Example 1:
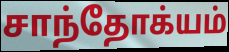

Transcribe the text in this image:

சாந்தோக்யம்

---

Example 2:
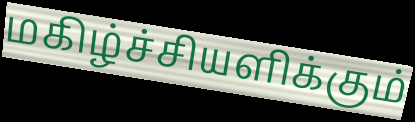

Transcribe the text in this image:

மகிழ்ச்சியளிக்கும்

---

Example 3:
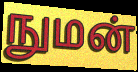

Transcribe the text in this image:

நுமன்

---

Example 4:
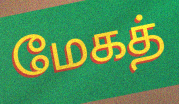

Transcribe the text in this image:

மேகத்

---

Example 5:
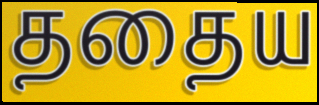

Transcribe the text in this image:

ததைய